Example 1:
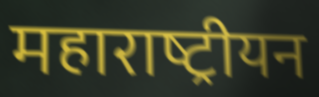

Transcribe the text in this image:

महाराष्ट्रीयन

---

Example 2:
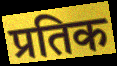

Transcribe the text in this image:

प्रतिक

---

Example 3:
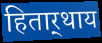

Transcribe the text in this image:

हितार्थाय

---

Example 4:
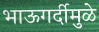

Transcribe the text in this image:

भाऊगर्दीमुळे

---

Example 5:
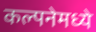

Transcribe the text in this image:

कल्पनेमध्ये